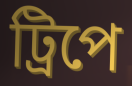
ট্রিপে